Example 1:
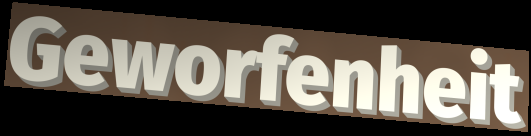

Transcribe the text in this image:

Geworfenheit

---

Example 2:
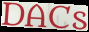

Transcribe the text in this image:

DACs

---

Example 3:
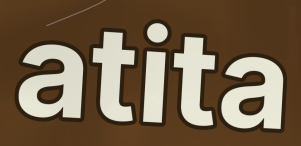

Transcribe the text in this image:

atita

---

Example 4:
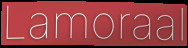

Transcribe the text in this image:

Lamoraal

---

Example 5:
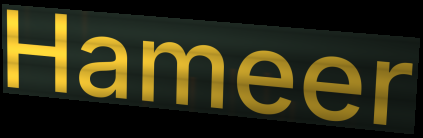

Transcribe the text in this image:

Hameer